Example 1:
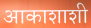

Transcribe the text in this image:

आकाशाशी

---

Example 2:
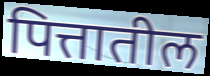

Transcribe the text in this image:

पित्तातील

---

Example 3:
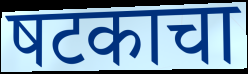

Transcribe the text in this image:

षटकाचा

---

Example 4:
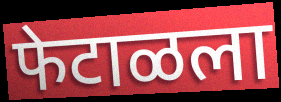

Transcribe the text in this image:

फेटाळला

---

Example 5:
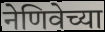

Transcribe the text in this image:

नेणिवेच्या